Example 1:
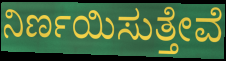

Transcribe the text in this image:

ನಿರ್ಣಯಿಸುತ್ತೇವೆ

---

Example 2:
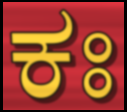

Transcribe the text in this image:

ಕಃ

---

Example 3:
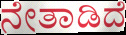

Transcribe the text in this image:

ನೇತಾಡಿದೆ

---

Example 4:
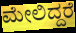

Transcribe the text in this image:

ಮೇಲಿದ್ದರೆ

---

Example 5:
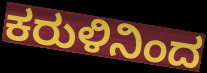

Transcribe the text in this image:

ಕರುಳಿನಿಂದ